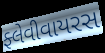
ફ્લેવીવાયરસ